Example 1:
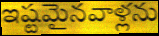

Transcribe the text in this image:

ఇష్టమైనవాళ్లను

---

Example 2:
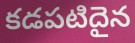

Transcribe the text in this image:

కడపటిదైన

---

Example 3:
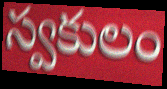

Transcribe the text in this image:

స్వకులం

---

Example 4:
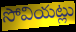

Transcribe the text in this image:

సోవియట్లు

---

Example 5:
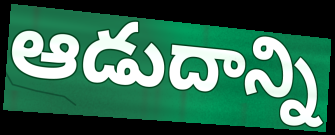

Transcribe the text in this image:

ఆడుదాన్ని